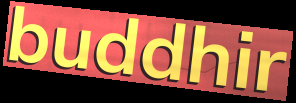
buddhir